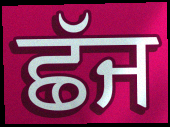
ਛੱਜ